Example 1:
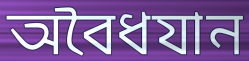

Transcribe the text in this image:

অবৈধযান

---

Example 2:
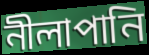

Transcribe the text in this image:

নীলাপানি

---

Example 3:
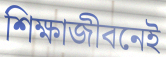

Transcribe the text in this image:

শিক্ষাজীবনেই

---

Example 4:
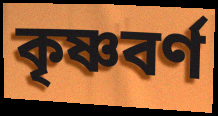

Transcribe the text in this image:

কৃষ্ণবর্ণ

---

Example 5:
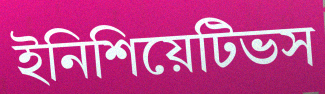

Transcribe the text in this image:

ইনিশিয়েটিভস